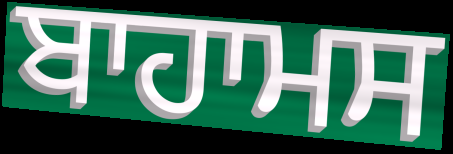
ਬਾਹਾਮਸ